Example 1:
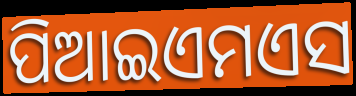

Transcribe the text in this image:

ପିଆଇଏମଏସ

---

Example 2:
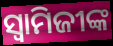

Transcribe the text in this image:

ସ୍ବାମିଜୀଙ୍କ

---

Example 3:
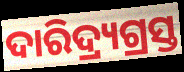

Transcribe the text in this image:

ଦାରିଦ୍ର୍ୟଗ୍ରସ୍ତ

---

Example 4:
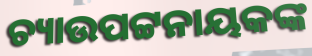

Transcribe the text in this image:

ଚ୍ୟାଉପଟ୍ଟନାୟକଙ୍କ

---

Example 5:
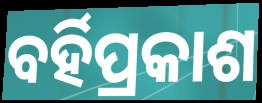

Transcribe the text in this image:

ବର୍ହିପ୍ରକାଶ